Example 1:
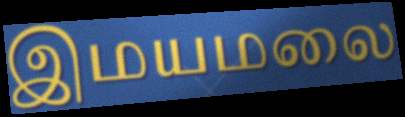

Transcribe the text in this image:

இமயமலை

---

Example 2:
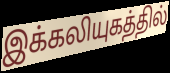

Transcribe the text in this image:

இக்கலியுகத்தில்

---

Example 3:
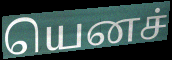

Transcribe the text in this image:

யெனச்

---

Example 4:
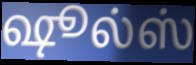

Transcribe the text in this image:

ஷூல்ஸ்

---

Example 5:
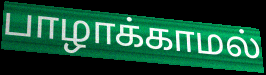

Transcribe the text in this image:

பாழாக்காமல்